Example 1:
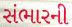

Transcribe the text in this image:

સંભારની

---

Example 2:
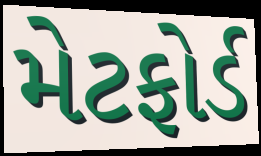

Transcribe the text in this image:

મેટફોર્ડ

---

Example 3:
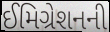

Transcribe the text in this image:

ઈમિગ્રેશનની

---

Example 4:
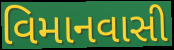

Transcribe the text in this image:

વિમાનવાસી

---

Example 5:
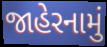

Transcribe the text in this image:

જાહેરનામું